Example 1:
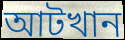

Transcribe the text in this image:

আটখান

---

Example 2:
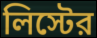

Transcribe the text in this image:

লিস্টের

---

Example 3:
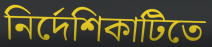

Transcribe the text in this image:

নির্দেশিকাটিতে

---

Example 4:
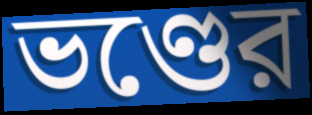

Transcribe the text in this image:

ভণ্ডের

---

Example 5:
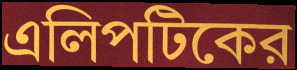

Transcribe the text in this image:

এলিপটিকের